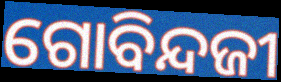
ଗୋବିନ୍ଦଜୀ